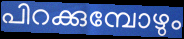
പിറക്കുമ്പോഴും